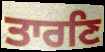
ਤਾਰਣਿ